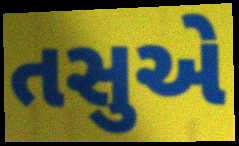
તસુએ